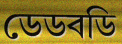
ডেডবডি